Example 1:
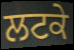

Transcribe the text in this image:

ਲਟਕੇ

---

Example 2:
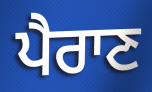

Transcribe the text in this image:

ਪੈਰਾਣ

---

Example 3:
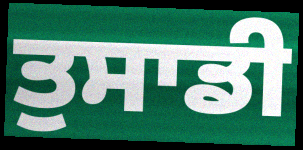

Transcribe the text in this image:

ਤੁਸਾਡੀ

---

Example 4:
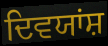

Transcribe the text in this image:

ਦਿਵਯਾਂਸ਼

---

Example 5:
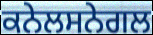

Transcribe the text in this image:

ਕਨੇਲਸਨੇਗਲ